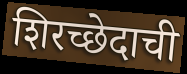
शिरच्छेदाची